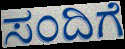
ಸಂದಿಗೆ